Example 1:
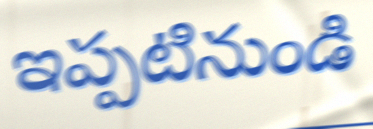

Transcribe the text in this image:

ఇప్పటినుండి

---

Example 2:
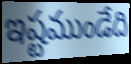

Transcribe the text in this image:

ఇష్టముండేది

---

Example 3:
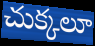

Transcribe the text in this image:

చుక్కలూ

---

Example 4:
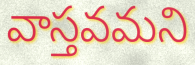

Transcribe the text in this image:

వాస్తవమని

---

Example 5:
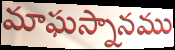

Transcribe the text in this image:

మాఘస్నానము